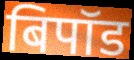
बिपॉड